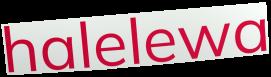
halelewa